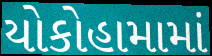
યોકોહામામાં